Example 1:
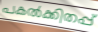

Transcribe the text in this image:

പകൽക്കിതപ്പ്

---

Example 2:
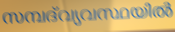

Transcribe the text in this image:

സമ്പദ്‌വ്യവസ്ഥയിൽ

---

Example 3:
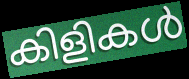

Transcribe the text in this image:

കിളികൾ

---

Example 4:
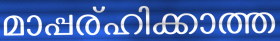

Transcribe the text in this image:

മാപ്പര്ഹിക്കാത്ത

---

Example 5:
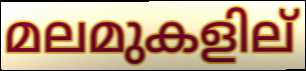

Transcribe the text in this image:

മലമുകളില്